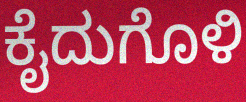
ಕೈದುಗೊಳಿ